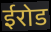
ईरोड